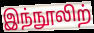
இந்நூலிற்